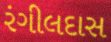
રંગીલદાસ